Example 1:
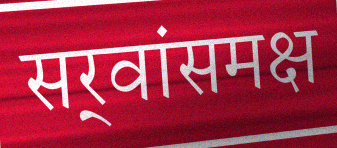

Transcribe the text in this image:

सर्वांसमक्ष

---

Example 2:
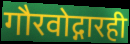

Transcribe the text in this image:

गौरवोद्गारही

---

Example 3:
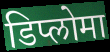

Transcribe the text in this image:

डिप्लोमा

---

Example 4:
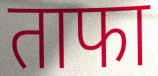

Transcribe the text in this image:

ताफा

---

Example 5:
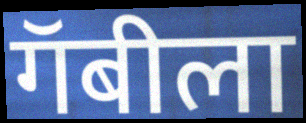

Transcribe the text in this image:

गॅबीला